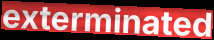
exterminated